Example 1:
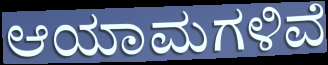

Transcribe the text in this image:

ಆಯಾಮಗಳಿವೆ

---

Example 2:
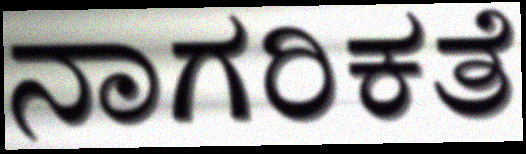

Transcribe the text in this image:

ನಾಗರಿಕತೆ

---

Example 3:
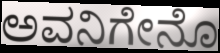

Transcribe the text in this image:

ಅವನಿಗೇನೊ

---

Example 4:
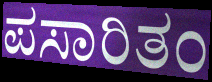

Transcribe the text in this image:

ಪಸಾರಿತಂ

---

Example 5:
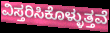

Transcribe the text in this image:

ವಿಸ್ತರಿಸಿಕೊಳ್ಳುತ್ತವೆ